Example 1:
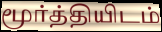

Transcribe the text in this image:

மூர்த்தியிடம்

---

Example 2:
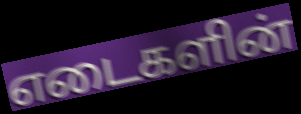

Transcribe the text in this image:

எடைகளின்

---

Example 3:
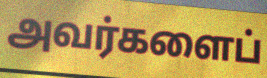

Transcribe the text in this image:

அவர்களைப்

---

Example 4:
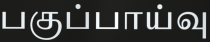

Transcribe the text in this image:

பகுப்பாய்வு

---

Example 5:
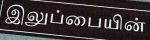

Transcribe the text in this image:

இலுப்பையின்